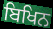
ਬਿਖਿਨ